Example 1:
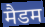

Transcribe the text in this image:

मैडम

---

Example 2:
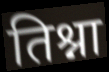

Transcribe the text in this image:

तिश्ना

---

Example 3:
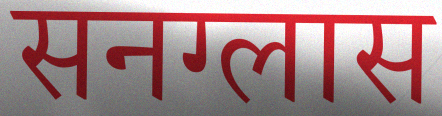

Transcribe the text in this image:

सनग्लास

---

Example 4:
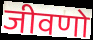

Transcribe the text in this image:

जीवणो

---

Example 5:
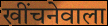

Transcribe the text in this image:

खींचनेवाला